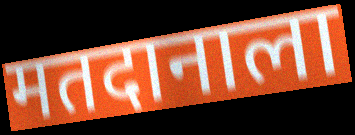
मतदानाला